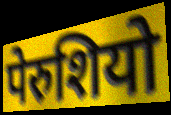
पेरुशियो